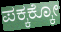
ಪಕ್ಕಕ್ಕೋ